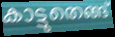
കാട്ടുതെങ്ങ്